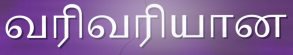
வரிவரியான